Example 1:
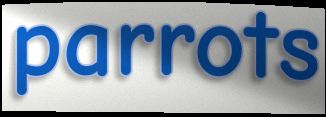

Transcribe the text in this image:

parrots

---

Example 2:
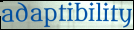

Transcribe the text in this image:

adaptibility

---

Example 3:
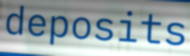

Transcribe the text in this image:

deposits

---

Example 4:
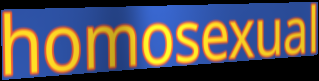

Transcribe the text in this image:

homosexual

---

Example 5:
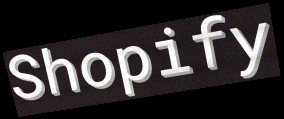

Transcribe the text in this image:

Shopify